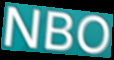
NBO